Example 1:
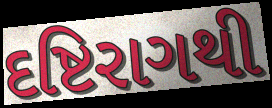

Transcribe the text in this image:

દષ્ટિરાગથી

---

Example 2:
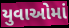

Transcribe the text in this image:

યુવાઓમાં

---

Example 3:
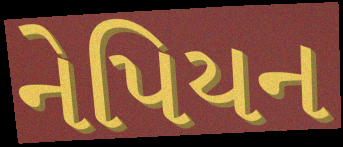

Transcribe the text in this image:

નેપિયન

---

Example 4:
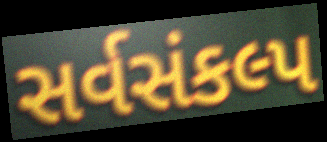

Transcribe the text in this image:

સર્વસંકલ્પ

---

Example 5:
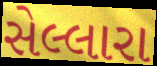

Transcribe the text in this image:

સેલ્લારા